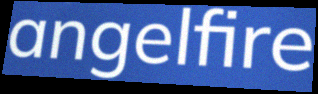
angelfire